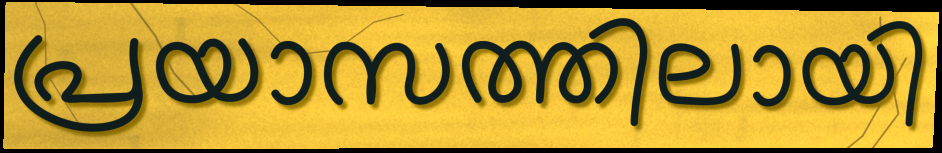
പ്രയാസത്തിലായി